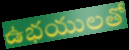
ఉభయులతో